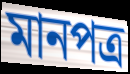
মানপত্র